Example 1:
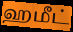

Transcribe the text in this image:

ஹமீட்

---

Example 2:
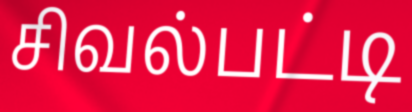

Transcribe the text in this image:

சிவல்பட்டி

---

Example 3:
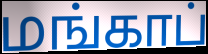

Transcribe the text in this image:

மங்காப்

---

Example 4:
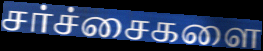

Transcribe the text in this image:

சர்ச்சைகளை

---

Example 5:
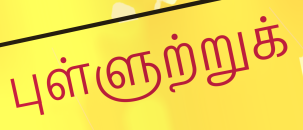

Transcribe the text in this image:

புள்ளுற்றுக்